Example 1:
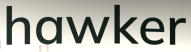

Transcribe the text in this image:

hawker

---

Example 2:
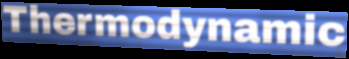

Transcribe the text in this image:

Thermodynamic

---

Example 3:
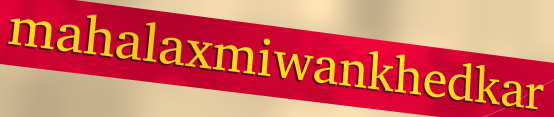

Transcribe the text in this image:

mahalaxmiwankhedkar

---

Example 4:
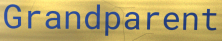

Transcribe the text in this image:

Grandparent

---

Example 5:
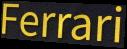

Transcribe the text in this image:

Ferrari